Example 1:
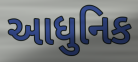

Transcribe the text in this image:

આધુનિક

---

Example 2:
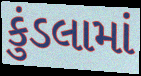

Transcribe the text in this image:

કુંડલામાં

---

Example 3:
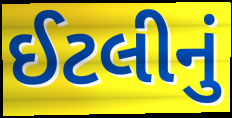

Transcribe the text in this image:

ઈટલીનું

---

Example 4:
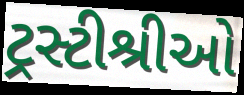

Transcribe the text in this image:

ટ્રસ્ટીશ્રીઓ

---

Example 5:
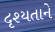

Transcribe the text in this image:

દૃશ્યતાને